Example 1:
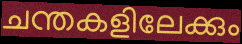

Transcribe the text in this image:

ചന്തകളിലേക്കും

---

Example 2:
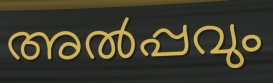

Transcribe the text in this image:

അൽപ്പവും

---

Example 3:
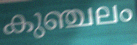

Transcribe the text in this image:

കുഞ്ചലം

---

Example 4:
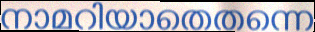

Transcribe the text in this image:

നാമറിയാതെതന്നെ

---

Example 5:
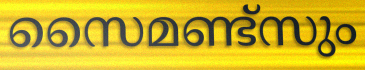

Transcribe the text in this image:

സൈമണ്ട്സും